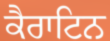
ਕੈਰਾਟਿਨ